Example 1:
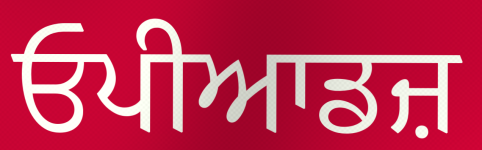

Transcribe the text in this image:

ਓਪੀਆਡਜ਼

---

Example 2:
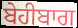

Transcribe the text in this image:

ਬੇਹੀਬਾਗ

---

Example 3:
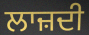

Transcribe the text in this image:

ਲਾਜ਼ਦੀ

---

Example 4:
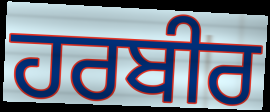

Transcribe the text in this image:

ਹਰਬੀਰ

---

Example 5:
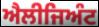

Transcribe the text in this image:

ਐਲੀਜਿਅੰਟ